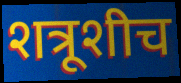
शत्रूशीच